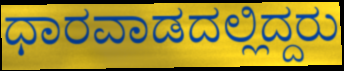
ಧಾರವಾಡದಲ್ಲಿದ್ದರು